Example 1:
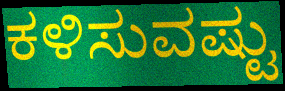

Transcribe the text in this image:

ಕಳಿಸುವಷ್ಟು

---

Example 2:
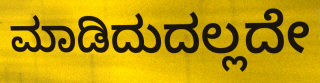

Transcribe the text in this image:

ಮಾಡಿದುದಲ್ಲದೇ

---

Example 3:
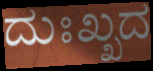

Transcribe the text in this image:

ದುಃಖ್ಖದ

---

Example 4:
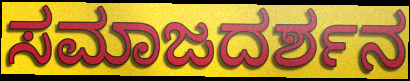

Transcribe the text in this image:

ಸಮಾಜದರ್ಶನ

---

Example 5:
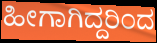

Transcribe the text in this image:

ಹೀಗಾಗಿದ್ದರಿಂದ